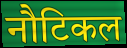
नौटिकल